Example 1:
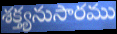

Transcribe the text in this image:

శక్త్యనుసారము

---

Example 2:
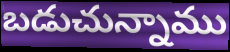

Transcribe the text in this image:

బడుచున్నాము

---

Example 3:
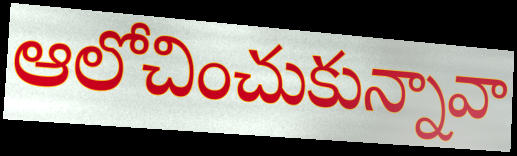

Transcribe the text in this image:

ఆలోచించుకున్నావా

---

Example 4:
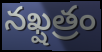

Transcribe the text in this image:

నఖ్షత్రం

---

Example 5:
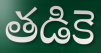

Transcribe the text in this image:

తడికె